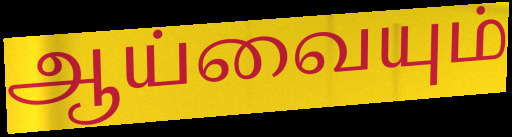
ஆய்வையும்